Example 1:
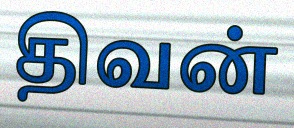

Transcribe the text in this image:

திவன்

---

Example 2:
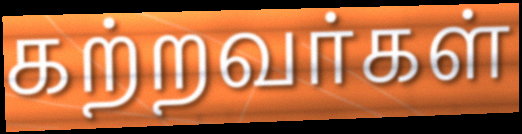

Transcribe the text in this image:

கற்றவர்கள்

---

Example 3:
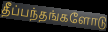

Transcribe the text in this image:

தீப்பந்தங்களோடு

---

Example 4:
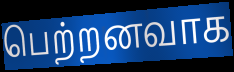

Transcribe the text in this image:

பெற்றனவாக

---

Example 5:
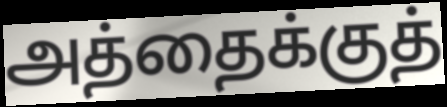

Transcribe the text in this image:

அத்தைக்குத்